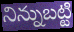
నిన్నుబట్టి